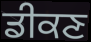
ਡੀਕਣ